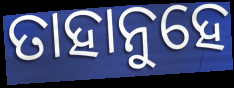
ତାହାନୁହେ